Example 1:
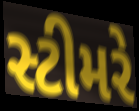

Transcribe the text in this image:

સ્ટીમરે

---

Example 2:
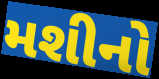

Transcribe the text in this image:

મશીનો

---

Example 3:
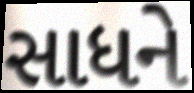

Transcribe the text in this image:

સાધને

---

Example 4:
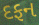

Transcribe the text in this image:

દફન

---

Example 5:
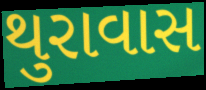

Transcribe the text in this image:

થુરાવાસ